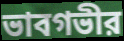
ভাবগভীর